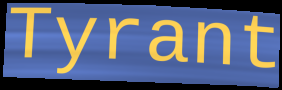
Tyrant